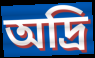
অদ্রি